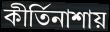
কীর্তিনাশায়